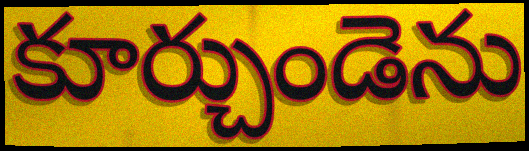
కూర్చుండెను